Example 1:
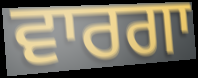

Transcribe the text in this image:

ਵਾਰਗਾ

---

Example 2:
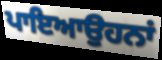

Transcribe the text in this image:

ਪਾਇਆਉਹਨਾਂ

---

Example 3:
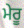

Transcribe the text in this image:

ਮੇਰੂ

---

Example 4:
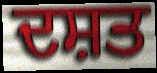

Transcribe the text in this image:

ਦਸ਼ਤ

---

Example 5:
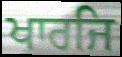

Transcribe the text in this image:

ਖਾਰਜਿ